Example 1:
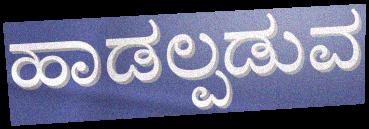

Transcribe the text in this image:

ಹಾಡಲ್ಪಡುವ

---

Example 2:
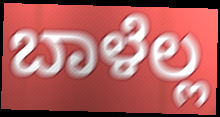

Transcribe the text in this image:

ಬಾಳೆಲ್ಲ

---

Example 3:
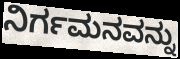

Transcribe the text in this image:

ನಿರ್ಗಮನವನ್ನು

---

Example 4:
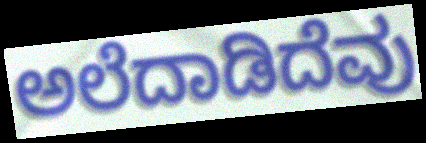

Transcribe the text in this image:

ಅಲೆದಾಡಿದೆವು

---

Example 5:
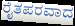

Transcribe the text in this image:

ರೈತಪರವಾದ